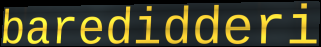
baredidderi